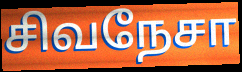
சிவநேசா